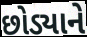
છોડ્યાને